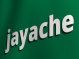
jayache